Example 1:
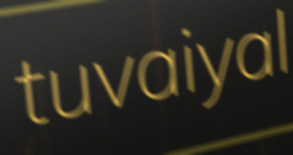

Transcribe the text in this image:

tuvaiyal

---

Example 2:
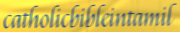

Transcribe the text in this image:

catholicbibleintamil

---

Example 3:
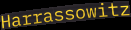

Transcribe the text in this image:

Harrassowitz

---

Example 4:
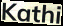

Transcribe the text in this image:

Kathi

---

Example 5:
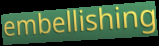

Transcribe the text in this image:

embellishing